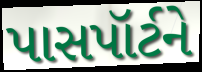
પાસપૉર્ટને